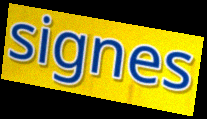
signes